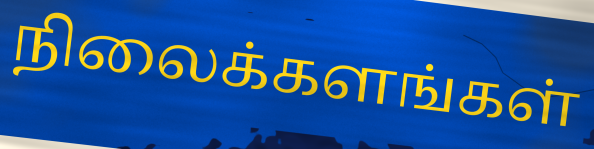
நிலைக்களங்கள்